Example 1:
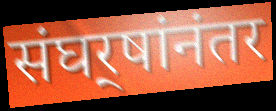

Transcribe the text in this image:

संघर्षांनंतर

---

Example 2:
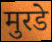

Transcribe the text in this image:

मुरडे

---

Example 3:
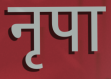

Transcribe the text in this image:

नृपा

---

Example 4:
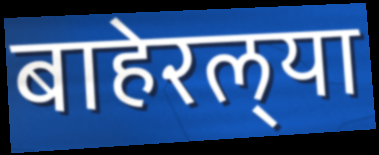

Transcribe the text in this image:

बाहेरल्या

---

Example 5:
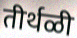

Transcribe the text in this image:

तीर्थळी